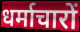
धर्माचारों